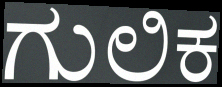
ಗುಲಿಕ